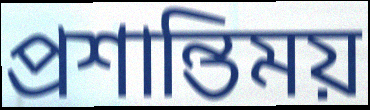
প্রশান্তিময়